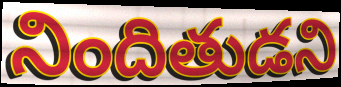
నిందితుడని